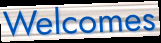
Welcomes